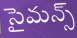
సైమన్స్